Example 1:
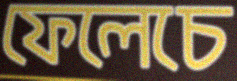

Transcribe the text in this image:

ফেলেচে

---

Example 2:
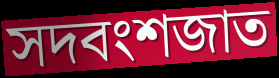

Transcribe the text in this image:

সদবংশজাত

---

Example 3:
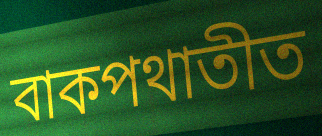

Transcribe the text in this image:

বাকপথাতীত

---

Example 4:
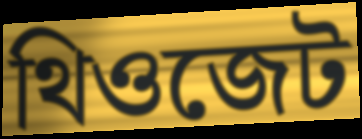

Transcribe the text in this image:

থিওজেট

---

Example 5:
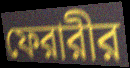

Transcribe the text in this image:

ফেরারীর